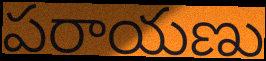
పరాయణు